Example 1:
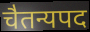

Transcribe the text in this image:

चैतन्यपद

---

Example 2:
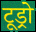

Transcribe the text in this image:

टूड्रो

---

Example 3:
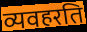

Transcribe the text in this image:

व्यवहरति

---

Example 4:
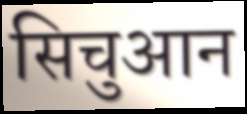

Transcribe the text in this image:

सिचुआन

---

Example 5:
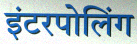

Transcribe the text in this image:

इंटरपोलिंग